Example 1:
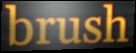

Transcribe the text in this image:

brush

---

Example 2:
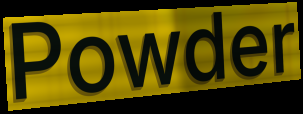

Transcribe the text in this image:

Powder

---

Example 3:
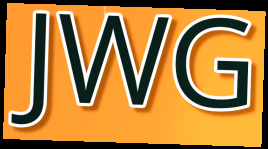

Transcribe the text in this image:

JWG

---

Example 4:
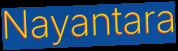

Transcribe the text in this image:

Nayantara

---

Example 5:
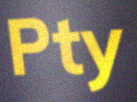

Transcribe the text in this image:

Pty